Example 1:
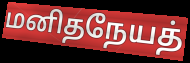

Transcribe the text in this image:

மனிதநேயத்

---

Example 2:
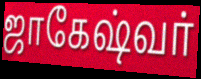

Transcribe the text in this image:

ஜாகேஷ்வர்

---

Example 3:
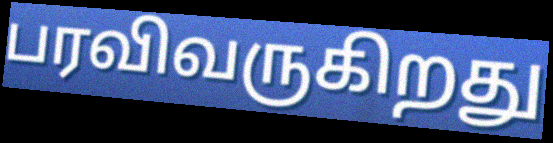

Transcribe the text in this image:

பரவிவருகிறது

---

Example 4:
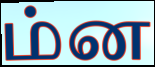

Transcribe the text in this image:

ம்ன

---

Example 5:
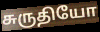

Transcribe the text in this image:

சுருதியோ